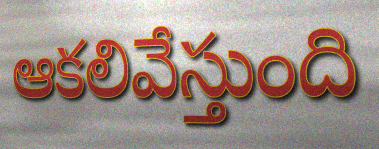
ఆకలివేస్తుంది